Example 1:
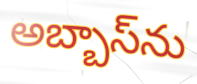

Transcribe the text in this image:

అబ్బాస్‌ను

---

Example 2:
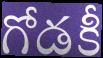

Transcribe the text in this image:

గోడకీ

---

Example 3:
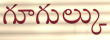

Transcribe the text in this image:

గూగుల్కు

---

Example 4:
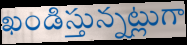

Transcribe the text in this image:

ఖండిస్తున్నట్లుగా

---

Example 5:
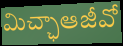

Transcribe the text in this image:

మిచ్ఛాఆజీవో